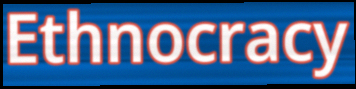
Ethnocracy